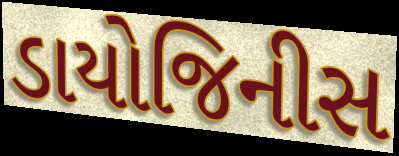
ડાયોજિનીસ